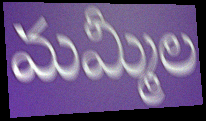
మమ్మీల